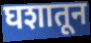
घशातून